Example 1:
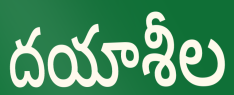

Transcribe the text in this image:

దయాశీల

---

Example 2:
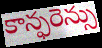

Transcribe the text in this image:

కాన్ఫరెన్సు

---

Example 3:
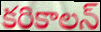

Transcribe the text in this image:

కరికాలన్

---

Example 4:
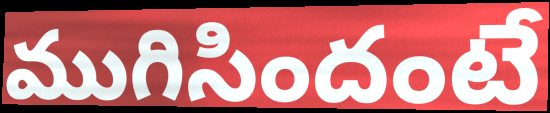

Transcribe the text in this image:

ముగిసిందంటే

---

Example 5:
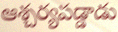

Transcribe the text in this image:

ఆశ్చర్యపడ్డాడు